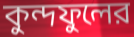
কুন্দফুলের